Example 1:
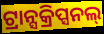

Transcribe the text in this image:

ଟ୍ରାନ୍ସକ୍ରିପ୍ସନଲ୍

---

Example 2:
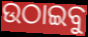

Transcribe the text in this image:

ଉଠାଇବୁ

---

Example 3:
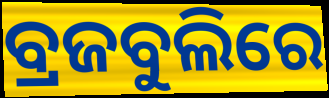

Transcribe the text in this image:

ବ୍ରଜବୁଲିରେ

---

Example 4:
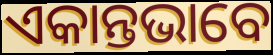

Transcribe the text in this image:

ଏକାନ୍ତଭାବେ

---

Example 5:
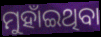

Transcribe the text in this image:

ମୁହାଁଇଥିବା